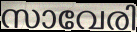
സാവേരി